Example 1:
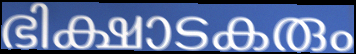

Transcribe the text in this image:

ഭിക്ഷാടകരും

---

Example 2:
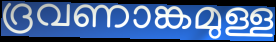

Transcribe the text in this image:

ദ്രവണാങ്കമുള്ള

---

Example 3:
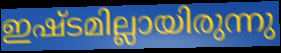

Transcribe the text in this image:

ഇഷ്ടമില്ലായിരുന്നു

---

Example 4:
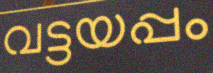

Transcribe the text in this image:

വട്ടയപ്പം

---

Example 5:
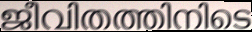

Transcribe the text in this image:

ജീവിതത്തിനിടെ